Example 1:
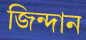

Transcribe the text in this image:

জিন্দান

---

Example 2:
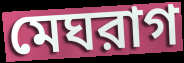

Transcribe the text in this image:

মেঘরাগ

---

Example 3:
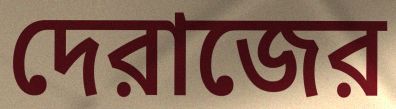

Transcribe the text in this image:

দেরাজের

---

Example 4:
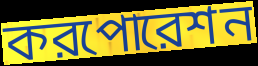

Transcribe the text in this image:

করপোরেশন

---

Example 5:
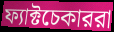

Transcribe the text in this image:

ফ্যাক্টচেকাররা